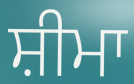
ਸ਼ੀਮਾ